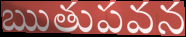
ఋతుపవన